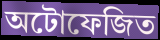
অটোফেজিত